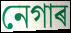
নেগাৰ